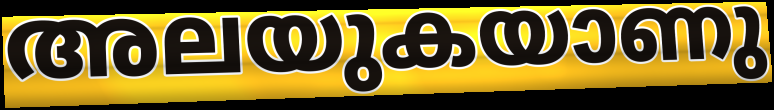
അലയുകയാണു